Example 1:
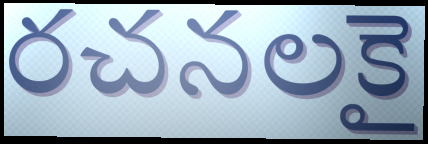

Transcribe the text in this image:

రచనలకై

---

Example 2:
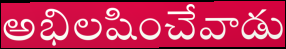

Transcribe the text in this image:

అభిలషించేవాడు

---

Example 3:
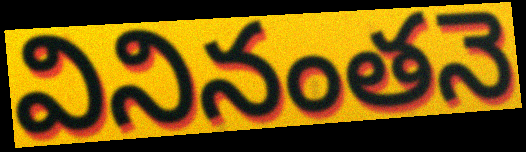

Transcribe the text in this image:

వినినంతనె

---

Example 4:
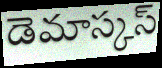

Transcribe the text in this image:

డెమాస్కస్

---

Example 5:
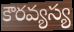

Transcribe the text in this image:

కౌరవ్యస్య